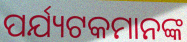
ପର୍ଯ୍ୟଟକମାନଙ୍କ